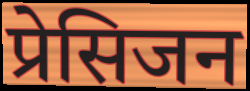
प्रेसिजन